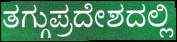
ತಗ್ಗುಪ್ರದೇಶದಲ್ಲಿ